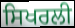
ਸਿਖਰਲੀ